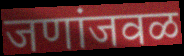
जणांजवळ